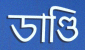
ডাণ্ডি